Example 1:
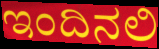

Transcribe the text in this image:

ಇಂದಿನಲಿ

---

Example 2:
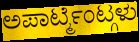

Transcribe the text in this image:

ಅಪಾರ್ಟ್ಮೆಂಟ್ಗಳು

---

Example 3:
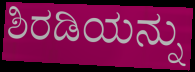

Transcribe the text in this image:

ಶಿರಡಿಯನ್ನು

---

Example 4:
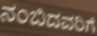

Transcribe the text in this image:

ನಂಬಿದವರಿಗೆ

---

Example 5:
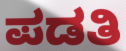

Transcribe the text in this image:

ಪಡತಿ